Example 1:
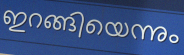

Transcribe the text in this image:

ഇറങ്ങിയെന്നും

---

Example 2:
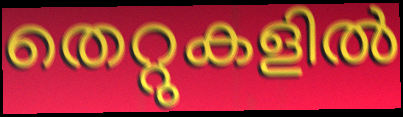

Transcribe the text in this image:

തെറ്റുകളിൽ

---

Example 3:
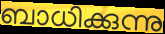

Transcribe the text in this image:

ബാധിക്കുന്നു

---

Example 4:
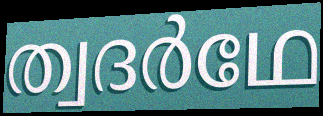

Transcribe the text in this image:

ത്വദർഥേ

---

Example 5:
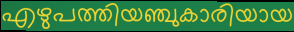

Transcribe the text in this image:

എഴുപത്തിയഞ്ചുകാരിയായ